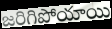
జరిగిపోయాయి